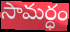
సామర్ధం